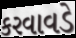
કરવાવડે